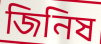
জিনিষ